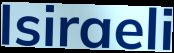
Isiraeli